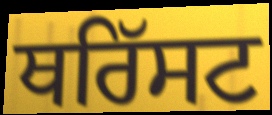
ਥਰਿੱਸਟ